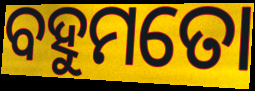
ବହୁମତୋ